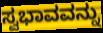
ಸ್ವಭಾವವನ್ನು